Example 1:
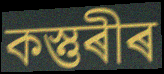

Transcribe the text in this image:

কস্তুৰীৰ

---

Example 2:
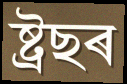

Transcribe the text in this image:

ষ্ট্ৰছৰ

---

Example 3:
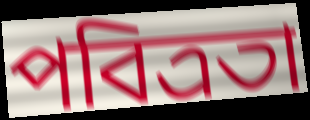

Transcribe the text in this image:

পবিত্ৰতা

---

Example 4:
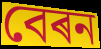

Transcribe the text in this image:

বেৰন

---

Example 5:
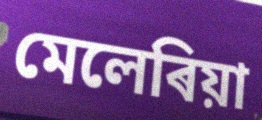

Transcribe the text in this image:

মেলেৰিয়া